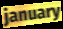
january